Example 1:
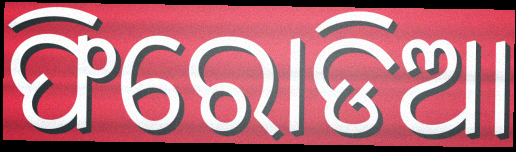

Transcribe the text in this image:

ଫିରୋଡିଆ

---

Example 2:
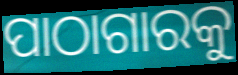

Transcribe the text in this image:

ପାଠାଗାରକୁ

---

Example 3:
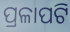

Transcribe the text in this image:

ପ୍ରଳାପଟି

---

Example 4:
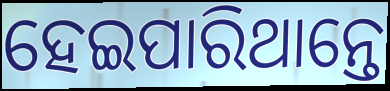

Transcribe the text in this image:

ହେଇପାରିଥାନ୍ତେ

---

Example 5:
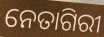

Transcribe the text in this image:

ନେତାଗିରୀ